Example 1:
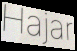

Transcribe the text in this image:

Hajar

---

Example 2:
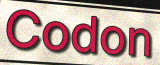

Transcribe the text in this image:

Codon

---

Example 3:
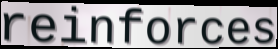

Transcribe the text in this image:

reinforces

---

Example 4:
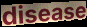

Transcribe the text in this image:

disease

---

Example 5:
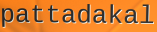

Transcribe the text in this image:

pattadakal